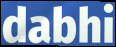
dabhi